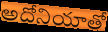
అదోనియాతో